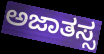
ಅಜಾತಸ್ಸ